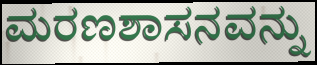
ಮರಣಶಾಸನವನ್ನು